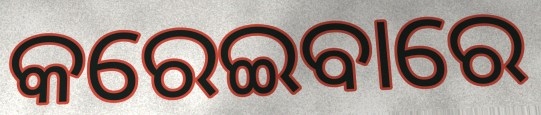
କରେଇବାରେ